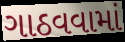
ગાઠવવામાં